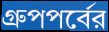
গ্রুপপর্বের